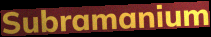
Subramanium